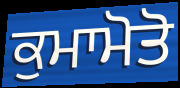
ਕੁਮਾਮੋਤੋ